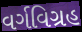
વર્ગવિગ્રહ